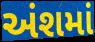
અંશમાં